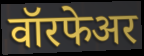
वॉरफेअर